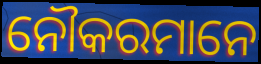
ନୌକରମାନେ